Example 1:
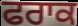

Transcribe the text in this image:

ਫਰਾਕ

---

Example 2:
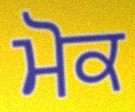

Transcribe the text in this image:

ਮੋਕ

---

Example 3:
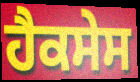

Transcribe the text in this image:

ਹੈਕਸੇਸ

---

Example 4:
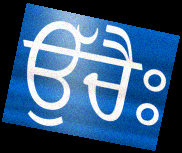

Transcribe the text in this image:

ਉੱਚੈਃ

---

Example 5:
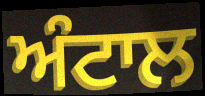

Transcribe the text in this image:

ਅੰਟਾਲ